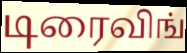
டிரைவிங்